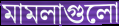
মামলাগুলো